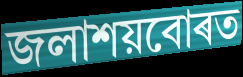
জলাশয়বোৰত